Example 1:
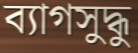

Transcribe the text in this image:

ব্যাগসুদ্ধু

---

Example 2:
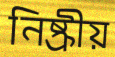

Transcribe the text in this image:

নিষ্ক্রীয়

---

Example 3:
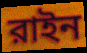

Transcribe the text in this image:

রাইন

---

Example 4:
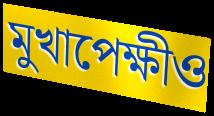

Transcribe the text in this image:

মুখাপেক্ষীও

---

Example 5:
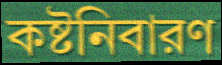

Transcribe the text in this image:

কষ্টনিবারণ